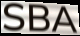
SBA